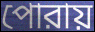
পোরায়